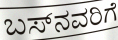
ಬಸ್‌ನವರಿಗೆ